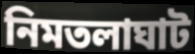
নিমতলাঘাট